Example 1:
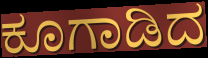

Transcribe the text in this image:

ಕೂಗಾಡಿದ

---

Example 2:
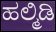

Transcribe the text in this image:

ಹಲ್ಮಿಡಿ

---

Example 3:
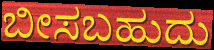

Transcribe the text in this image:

ಬೀಸಬಹುದು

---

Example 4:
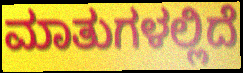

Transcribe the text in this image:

ಮಾತುಗಳಲ್ಲಿದೆ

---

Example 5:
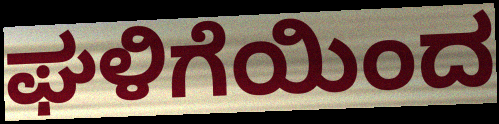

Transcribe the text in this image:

ಘಳಿಗೆಯಿಂದ